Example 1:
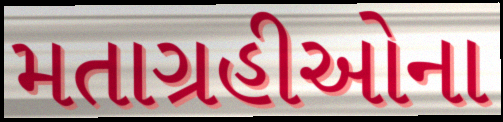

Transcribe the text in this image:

મતાગ્રહીઓના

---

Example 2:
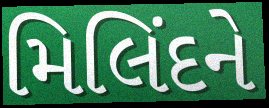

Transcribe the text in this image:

મિલિંદને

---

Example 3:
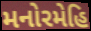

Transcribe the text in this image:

મનોરમેહિ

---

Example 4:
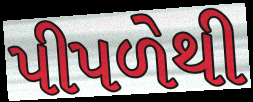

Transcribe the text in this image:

પીપળેથી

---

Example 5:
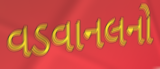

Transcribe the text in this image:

વડવાનલનો